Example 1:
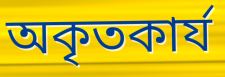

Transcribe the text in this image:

অকৃতকাৰ্য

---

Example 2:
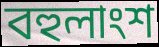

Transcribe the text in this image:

বহুলাংশ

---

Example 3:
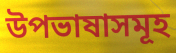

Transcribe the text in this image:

উপভাষাসমূহ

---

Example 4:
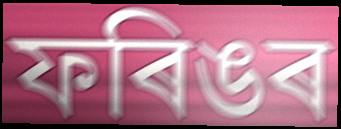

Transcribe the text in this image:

ফৰিঙৰ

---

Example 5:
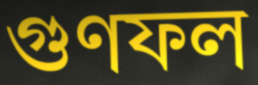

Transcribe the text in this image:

গুণফল